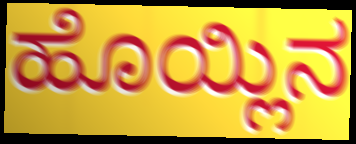
ಹೊಯ್ಲಿನ